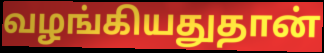
வழங்கியதுதான்